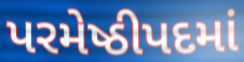
પરમેષ્ઠીપદમાં